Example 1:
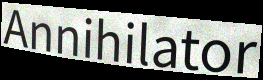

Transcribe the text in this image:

Annihilator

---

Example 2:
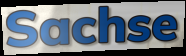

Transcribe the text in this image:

Sachse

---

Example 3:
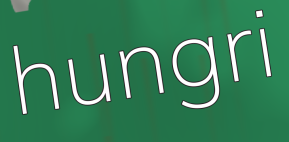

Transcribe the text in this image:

hungri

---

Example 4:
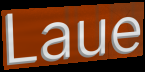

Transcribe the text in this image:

Laue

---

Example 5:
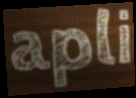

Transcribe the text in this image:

apli